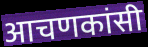
आचणकांसी